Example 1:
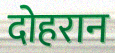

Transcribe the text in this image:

दोहरान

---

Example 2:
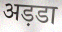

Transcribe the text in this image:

अड़डा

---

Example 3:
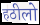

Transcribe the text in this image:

हठीलो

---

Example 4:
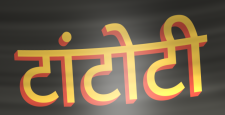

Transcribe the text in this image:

टांटोटी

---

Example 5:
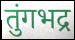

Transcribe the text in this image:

तुंगभद्र